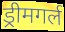
ड्रीमगर्ल